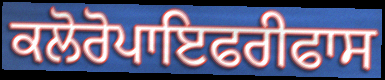
ਕਲੋਰੋਪਾਇਫਰੀਫਾਸ